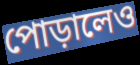
পোড়ালেও